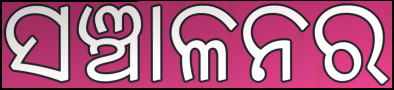
ସଞ୍ଚାଳନର